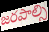
జరపాల్సి